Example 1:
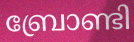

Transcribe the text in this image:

ബ്രോണ്ടി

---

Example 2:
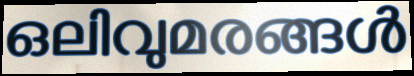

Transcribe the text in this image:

ഒലിവുമരങ്ങൾ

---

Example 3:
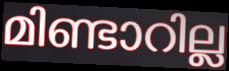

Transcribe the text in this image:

മിണ്ടാറില്ല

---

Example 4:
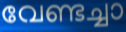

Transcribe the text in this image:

വേണ്ടച്ചാ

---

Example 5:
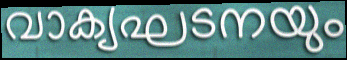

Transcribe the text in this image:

വാക്യഘടനയും